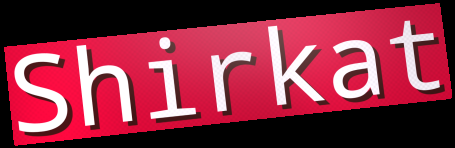
Shirkat